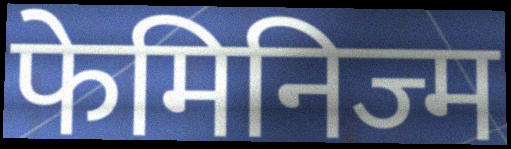
फेमिनिज्‍म